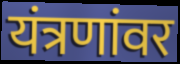
यंत्रणांवर